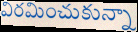
విరమించుకున్నా